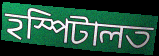
হস্পিটালত